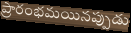
ప్రారంభమయినప్పుడు